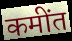
कमींत